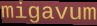
migavum